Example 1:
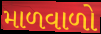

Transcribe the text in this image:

માળવાળો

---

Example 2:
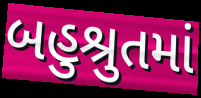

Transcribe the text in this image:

બહુશ્રુતમાં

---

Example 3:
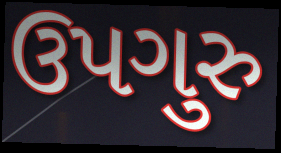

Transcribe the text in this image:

ઉપગુરુ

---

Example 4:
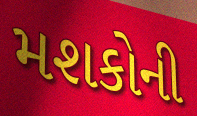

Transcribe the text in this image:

મશકોની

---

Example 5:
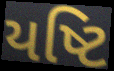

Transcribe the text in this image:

યષ્ટિ